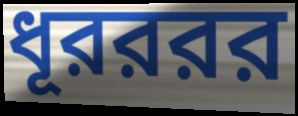
ধূরররর